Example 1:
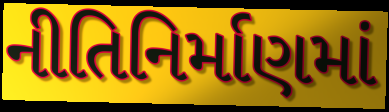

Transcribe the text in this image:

નીતિનિર્માણમાં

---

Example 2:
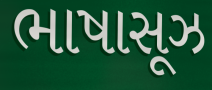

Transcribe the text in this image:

ભાષાસૂઝ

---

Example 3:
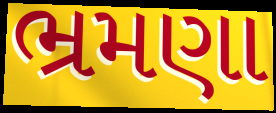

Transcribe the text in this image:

ભ્રમણા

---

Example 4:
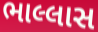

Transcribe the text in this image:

ભાલ્લાસ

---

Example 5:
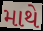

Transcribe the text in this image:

માથે